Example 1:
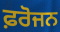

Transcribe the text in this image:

ਫ਼ਰੋਜਨ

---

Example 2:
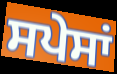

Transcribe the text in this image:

ਸਪੇਸਾਂ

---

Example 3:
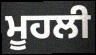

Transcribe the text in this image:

ਮੂਹਲੀ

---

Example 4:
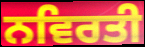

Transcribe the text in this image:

ਨਵਿਰਤੀ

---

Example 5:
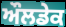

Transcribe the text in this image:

ਔਲਡੇਕ